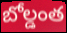
బోల్డంత